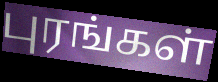
புரங்கள்